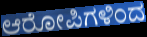
ಆರೋಪಿಗಳಿಂದ